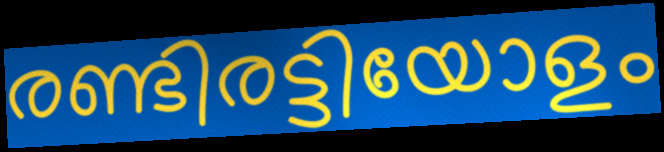
രണ്ടിരട്ടിയോളം